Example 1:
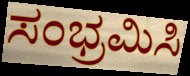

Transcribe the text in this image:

ಸಂಭ್ರಮಿಸಿ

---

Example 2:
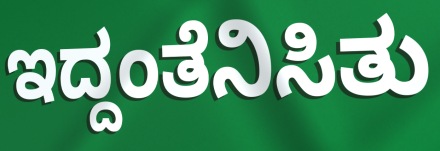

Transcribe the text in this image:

ಇದ್ದಂತೆನಿಸಿತು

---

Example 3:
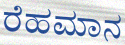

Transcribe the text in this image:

ರೆಹಮಾನ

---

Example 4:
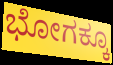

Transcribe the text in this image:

ಭೋಗಕ್ಕೂ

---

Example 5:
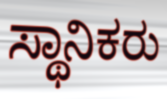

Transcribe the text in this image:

ಸ್ಥಾನಿಕರು